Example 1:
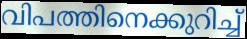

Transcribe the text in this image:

വിപത്തിനെക്കുറിച്ച്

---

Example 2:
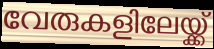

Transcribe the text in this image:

വേരുകളിലേയ്ക്ക്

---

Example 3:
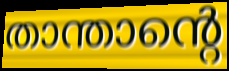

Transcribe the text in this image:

താന്താന്റെ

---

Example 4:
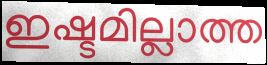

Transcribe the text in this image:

ഇഷ്ടമില്ലാത്ത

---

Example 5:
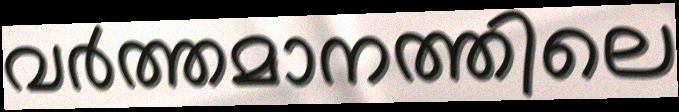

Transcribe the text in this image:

വർത്തമാനത്തിലെ